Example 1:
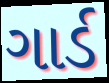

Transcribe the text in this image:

ગાર્ડ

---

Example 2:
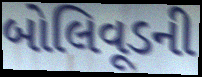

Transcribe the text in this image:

બોલિવૂડની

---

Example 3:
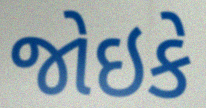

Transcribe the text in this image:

જોઇકે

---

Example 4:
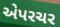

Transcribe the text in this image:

એપરચર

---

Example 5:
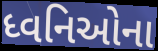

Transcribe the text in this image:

ધ્વનિઓના